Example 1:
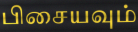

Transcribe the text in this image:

பிசையவும்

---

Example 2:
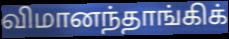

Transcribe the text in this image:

விமானந்தாங்கிக்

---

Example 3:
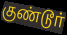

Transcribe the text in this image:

குண்டூர்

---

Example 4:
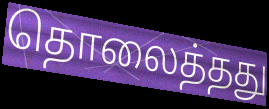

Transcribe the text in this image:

தொலைத்தது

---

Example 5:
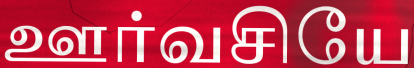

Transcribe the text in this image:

ஊர்வசியே